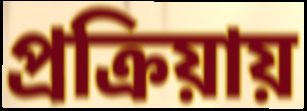
প্রক্রিয়ায়